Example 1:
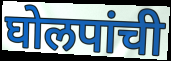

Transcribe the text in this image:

घोलपांची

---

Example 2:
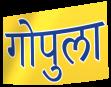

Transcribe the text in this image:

गोपुला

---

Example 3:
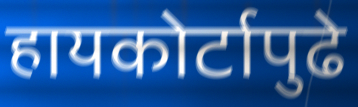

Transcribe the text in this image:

हायकोर्टापुढे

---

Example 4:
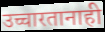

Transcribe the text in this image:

उच्चारतानाही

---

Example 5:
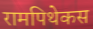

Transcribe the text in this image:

रामपिथेकस